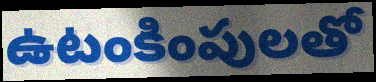
ఉటంకింపులతో